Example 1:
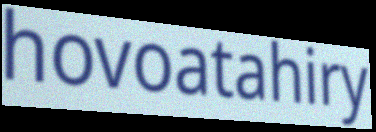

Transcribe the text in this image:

hovoatahiry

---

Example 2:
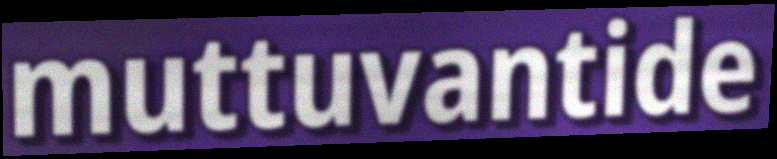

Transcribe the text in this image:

muttuvantide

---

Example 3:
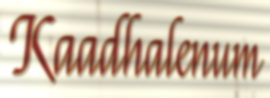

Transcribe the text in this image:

Kaadhalenum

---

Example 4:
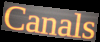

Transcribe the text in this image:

Canals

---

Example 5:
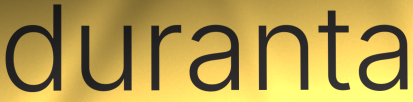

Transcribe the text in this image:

duranta